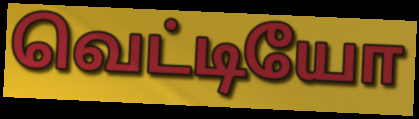
வெட்டியோ